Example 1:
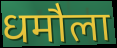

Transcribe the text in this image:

धमौला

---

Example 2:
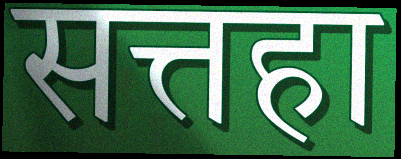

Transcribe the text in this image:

सत्तहा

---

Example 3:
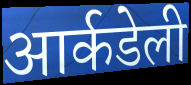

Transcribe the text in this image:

आर्कडेली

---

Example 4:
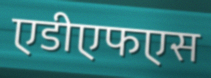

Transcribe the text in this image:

एडीएफएस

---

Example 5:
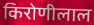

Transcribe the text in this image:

किरोणीलाल